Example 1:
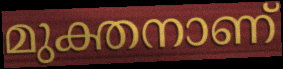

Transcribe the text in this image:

മുക്തനാണ്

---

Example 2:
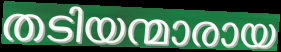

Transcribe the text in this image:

തടിയന്മാരായ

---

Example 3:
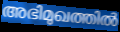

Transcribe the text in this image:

അഭിമുഖത്തിൽ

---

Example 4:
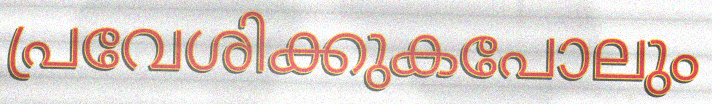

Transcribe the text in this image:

പ്രവേശിക്കുകപോലും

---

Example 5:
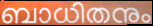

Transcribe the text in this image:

ബാധിതനും